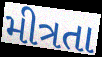
મીત્રતા